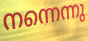
നന്നെന്നു